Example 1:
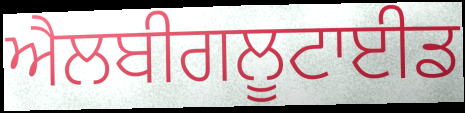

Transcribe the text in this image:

ਐਲਬੀਗਲੂਟਾਈਡ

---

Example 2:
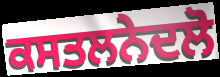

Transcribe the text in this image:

ਕਸਤਲਨੇਦਲੋ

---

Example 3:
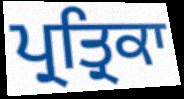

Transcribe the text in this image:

ਪ੍ਰਤ੍ਰਿਕਾ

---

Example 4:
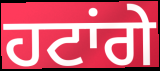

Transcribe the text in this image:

ਹਟਾਂਗੇ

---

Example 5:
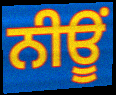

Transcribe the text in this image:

ਨੀਊਂ